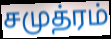
சமுத்ரம்